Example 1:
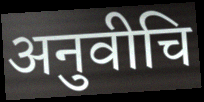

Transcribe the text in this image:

अनुवीचि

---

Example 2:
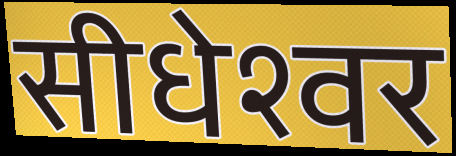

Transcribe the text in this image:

सीधेश्वर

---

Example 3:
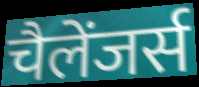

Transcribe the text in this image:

चैलेंजर्स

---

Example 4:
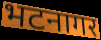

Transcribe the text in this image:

भटनागर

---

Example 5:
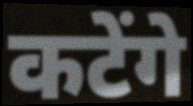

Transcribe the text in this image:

कटेंगे